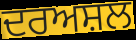
ਦਰਅਸ਼ਲ